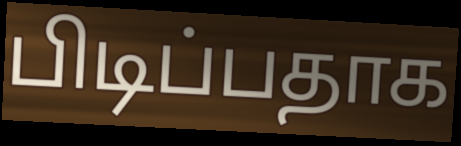
பிடிப்பதாக